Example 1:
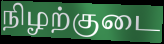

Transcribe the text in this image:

நிழற்குடை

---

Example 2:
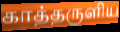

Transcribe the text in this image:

காத்தருளிய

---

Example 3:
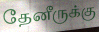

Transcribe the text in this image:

தேனீருக்கு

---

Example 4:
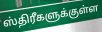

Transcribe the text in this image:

ஸ்திரீகளுக்குள்ள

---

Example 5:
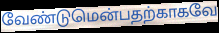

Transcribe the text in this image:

வேண்டுமென்பதற்காகவே